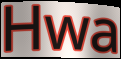
Hwa